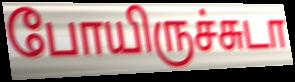
போயிருச்சுடா